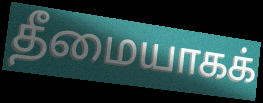
தீமையாகக்